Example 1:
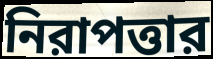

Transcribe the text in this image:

নিরাপত্তার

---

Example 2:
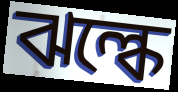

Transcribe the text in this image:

ঝল্কে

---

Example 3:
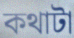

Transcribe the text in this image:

কথাটা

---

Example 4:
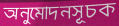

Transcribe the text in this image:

অনুমোদনসূচক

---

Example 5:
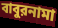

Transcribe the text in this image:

বাবুরনামা